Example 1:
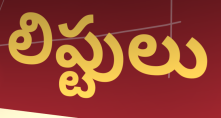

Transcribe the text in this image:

లిప్టులు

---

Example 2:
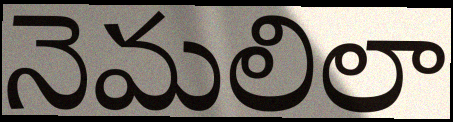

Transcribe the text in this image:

నెమలిలా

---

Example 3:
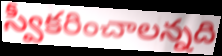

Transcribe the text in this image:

స్వీకరించాలన్నది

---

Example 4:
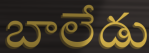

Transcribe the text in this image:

బాలేడు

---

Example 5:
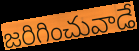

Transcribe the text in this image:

జరిగించువాడే